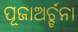
ପୂଜାଅର୍ଚ୍ଚନା